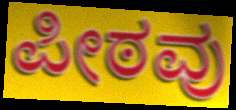
ಪೀಠವು